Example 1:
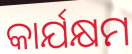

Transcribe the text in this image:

କାର୍ଯକ୍ଷମ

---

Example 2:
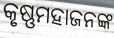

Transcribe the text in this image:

କୃଷ୍ଣମହାଜନଙ୍କ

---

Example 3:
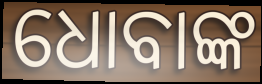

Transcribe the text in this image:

ଧୋବାଙ୍କ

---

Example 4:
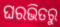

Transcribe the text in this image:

ଘରଭିତରୁ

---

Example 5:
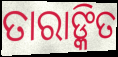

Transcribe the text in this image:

ତାରାଙ୍କିତ